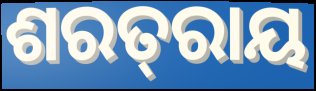
ଶରତ୍‌ରାୟ